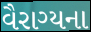
વૈરાગ્યના